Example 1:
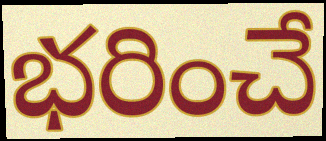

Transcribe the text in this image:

భరించే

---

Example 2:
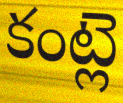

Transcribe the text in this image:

కంట్లె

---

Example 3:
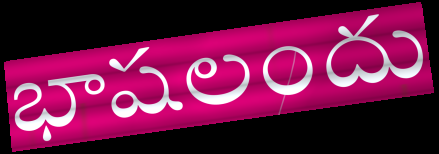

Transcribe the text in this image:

భాషలందు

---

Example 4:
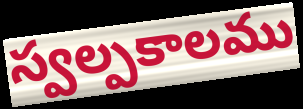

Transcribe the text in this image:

స్వల్పకాలము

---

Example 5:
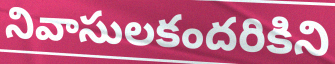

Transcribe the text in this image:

నివాసులకందరికిని